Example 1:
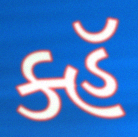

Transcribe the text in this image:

ક્હૅ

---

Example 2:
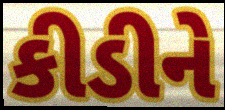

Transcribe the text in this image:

કીડીને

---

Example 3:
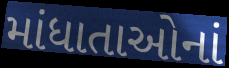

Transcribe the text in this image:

માંધાતાઓનાં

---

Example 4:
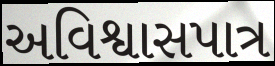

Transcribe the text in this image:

અવિશ્વાસપાત્ર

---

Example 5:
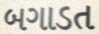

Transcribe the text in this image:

બગાડત